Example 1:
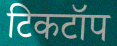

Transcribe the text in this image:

टिकटॉप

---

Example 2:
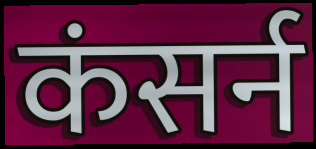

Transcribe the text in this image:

कंसर्न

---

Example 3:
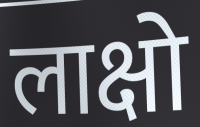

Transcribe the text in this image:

लाक्षो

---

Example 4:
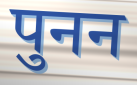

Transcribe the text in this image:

पुनन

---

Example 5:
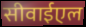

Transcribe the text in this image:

सीवाईएल